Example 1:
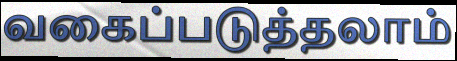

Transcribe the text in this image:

வகைப்படுத்தலாம்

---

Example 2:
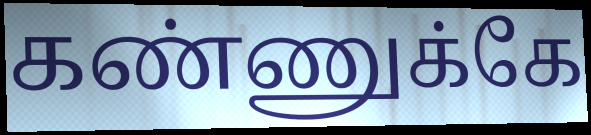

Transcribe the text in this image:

கண்ணுக்கே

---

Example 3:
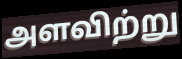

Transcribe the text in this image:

அளவிற்று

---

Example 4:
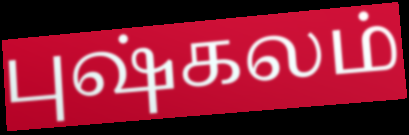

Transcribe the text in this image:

புஷ்கலம்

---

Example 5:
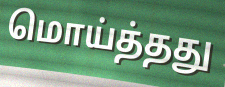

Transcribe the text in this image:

மொய்த்தது